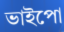
ভাইপো